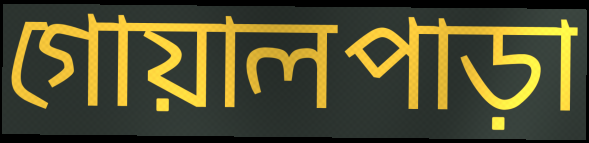
গোয়ালপাড়া